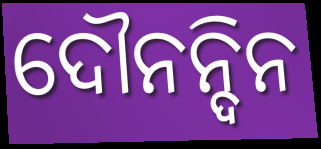
ଦୌନନ୍ଦିନ